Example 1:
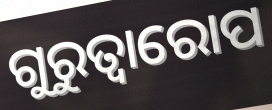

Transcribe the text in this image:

ଗୁରୁତ୍ବାରୋପ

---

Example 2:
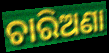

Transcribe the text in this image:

ଚାରିଅଣା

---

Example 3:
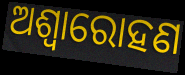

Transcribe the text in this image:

ଅଶ୍ୱାରୋହଣ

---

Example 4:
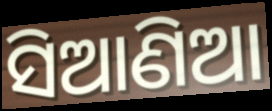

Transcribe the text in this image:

ସିଆଣିଆ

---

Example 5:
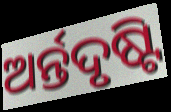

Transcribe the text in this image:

ଅର୍ନ୍ତଦୃଷ୍ଟି